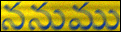
ననుము